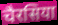
चैरसिया